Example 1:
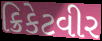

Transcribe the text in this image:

ક્રિકેટવીર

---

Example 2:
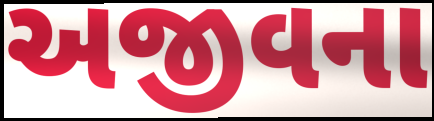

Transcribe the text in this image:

અજીવના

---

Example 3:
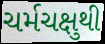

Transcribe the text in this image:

ચર્મચક્ષુથી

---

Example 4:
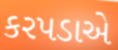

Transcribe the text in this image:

કરપડાએ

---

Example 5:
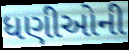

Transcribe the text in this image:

ધણીઓની